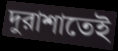
দুরাশাতেই